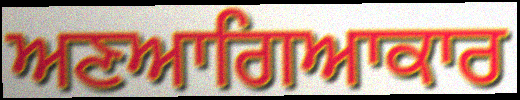
ਅਣਆਗਿਆਕਾਰ